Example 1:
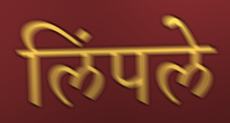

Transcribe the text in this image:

लिंपले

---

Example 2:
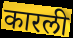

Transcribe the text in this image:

कारली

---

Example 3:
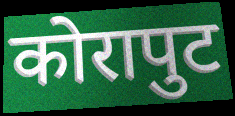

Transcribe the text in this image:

कोरापुट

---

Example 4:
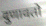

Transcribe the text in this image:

दुणावतो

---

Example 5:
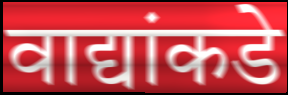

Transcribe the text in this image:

वाद्यांकडे